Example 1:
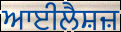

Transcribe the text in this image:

ਆਈਲੈਸ਼ਜ਼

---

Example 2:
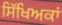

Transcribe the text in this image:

ਸਿੱਖਿਅਕਾਂ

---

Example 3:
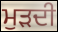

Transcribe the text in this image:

ਮੁੜਦੀ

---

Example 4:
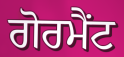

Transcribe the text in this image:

ਗੋਰਮੈਂਟ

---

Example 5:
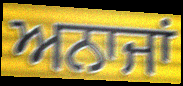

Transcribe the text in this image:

ਅਨਾਜਾਂ